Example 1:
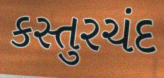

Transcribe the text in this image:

કસ્તુરચંદ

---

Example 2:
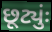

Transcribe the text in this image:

છૂટ્યુંઃ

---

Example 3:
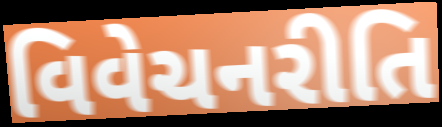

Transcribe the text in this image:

વિવેચનરીતિ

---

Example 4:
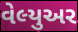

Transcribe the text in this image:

વેલ્યુઅર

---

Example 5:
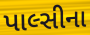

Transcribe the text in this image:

પાલ્સીના